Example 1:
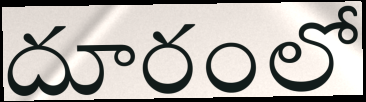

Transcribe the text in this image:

దూరంలో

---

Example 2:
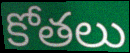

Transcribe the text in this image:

కోతలు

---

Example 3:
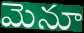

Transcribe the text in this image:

మెనూ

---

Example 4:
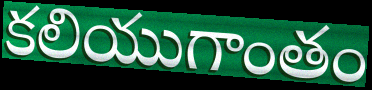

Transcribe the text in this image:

కలియుగాంతం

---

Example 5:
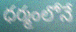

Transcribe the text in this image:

ధర్మంలోనే